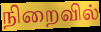
நிறைவில்